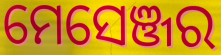
ମେସେଞ୍ଜର